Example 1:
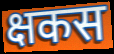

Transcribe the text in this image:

क्षकस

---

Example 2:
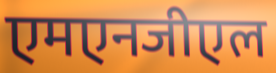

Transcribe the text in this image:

एमएनजीएल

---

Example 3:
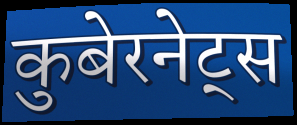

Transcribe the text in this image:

कुबेरनेट्स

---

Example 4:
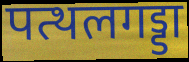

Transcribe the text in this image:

पत्थलगड्डा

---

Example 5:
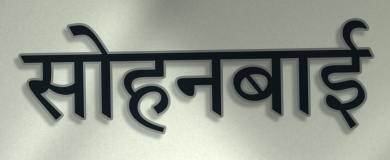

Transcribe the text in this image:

सोहनबाई